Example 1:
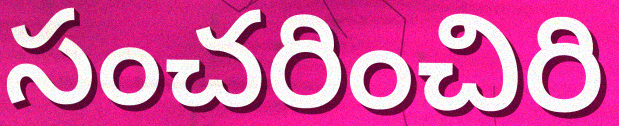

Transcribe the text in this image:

సంచరించిరి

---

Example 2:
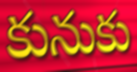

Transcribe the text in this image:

కునుకు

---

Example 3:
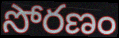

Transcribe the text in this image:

సోరణం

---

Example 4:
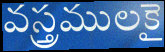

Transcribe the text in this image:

వస్త్రములకై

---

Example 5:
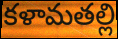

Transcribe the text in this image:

కళామతల్లి